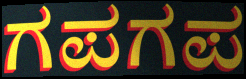
ಗಪಗಪ